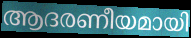
ആദരണീയമായി